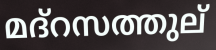
മദ്റസത്തുല്